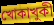
খোকাখুকী